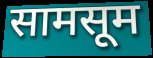
सामसूम